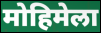
मोहिमेला